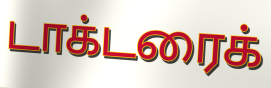
டாக்டரைக்